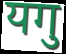
यगु